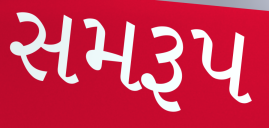
સમરૂપ